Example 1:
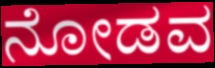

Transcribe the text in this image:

ನೋಡವ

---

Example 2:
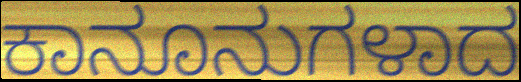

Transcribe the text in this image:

ಕಾನೂನುಗಳಾದ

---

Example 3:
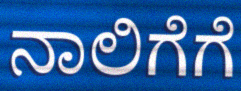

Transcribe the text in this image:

ನಾಲಿಗೆಗೆ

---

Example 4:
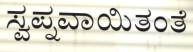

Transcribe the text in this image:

ಸ್ವಪ್ನವಾಯಿತಂತೆ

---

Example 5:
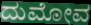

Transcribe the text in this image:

ದುಮೋವ